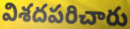
విశదపరిచారు